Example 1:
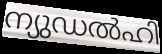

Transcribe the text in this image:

ന്യുഡൽഹി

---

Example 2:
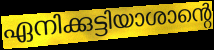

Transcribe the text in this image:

ഏനിക്കുട്ടിയാശാന്റെ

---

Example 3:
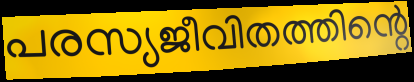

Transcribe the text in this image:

പരസ്യജീവിതത്തിന്റെ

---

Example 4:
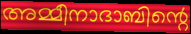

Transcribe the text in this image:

അമ്മീനാദാബിന്റെ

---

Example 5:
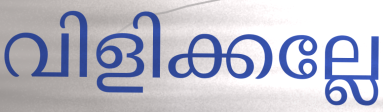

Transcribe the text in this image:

വിളിക്കല്ലേ